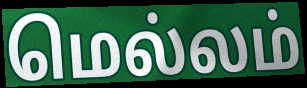
மெல்லம்